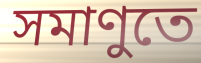
সমাণুতে